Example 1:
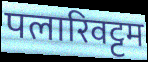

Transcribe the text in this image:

पलारिवट्टम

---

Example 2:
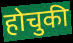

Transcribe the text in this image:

होचुकी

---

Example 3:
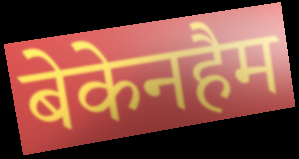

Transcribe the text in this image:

बेकेनहैम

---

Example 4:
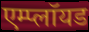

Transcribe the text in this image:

एम्प्लॉयड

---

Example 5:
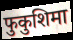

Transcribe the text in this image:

फुकुशिमा